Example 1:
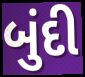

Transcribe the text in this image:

બુંદી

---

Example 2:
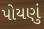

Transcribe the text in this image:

પોયણું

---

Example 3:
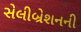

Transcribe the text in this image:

સેલીબ્રેશનની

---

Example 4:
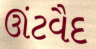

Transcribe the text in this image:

ઊંટવૈદ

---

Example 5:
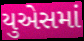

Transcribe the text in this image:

યુએસમાં